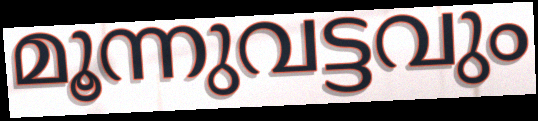
മൂന്നുവട്ടവും